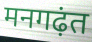
मनगढ़ंत